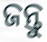
ଜନ୍ତୁ